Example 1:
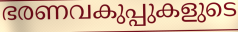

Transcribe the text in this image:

ഭരണവകുപ്പുകളുടെ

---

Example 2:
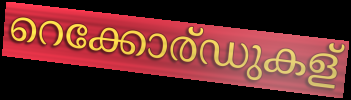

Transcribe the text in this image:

റെക്കോര്ഡുകള്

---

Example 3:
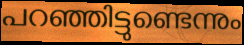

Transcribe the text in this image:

പറഞ്ഞിട്ടുണ്ടെന്നും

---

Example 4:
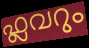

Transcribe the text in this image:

ഫ്ലവറും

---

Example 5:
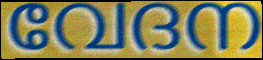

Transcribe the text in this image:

വേദന